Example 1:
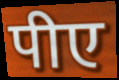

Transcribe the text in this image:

पीए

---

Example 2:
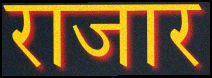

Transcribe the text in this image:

राजार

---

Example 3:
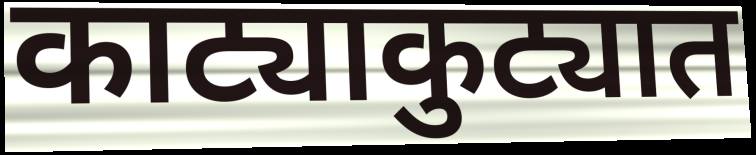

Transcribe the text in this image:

काट्याकुट्यात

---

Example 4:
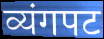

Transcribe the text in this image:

व्यंगपट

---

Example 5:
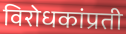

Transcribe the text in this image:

विरोधकांप्रती